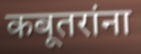
कबूतरांना